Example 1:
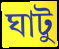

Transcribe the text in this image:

ঘাটু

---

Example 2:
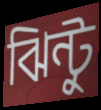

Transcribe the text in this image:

ঝিন্টু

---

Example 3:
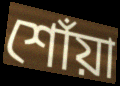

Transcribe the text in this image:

শোঁয়া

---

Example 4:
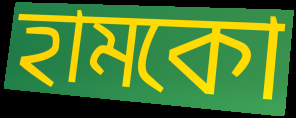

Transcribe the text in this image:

হামকো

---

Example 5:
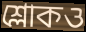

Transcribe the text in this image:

শ্লোকও